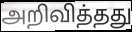
அறிவித்தது